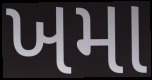
ખમા